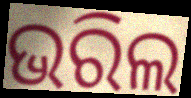
ଭରିଲ